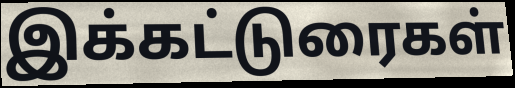
இக்கட்டுரைகள்